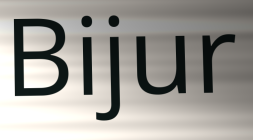
Bijur